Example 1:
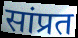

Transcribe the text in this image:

सांप्रत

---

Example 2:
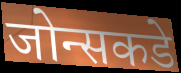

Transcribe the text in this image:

जोन्सकडे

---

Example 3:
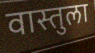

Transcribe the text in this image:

वास्तुला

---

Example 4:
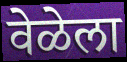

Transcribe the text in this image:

वेळेला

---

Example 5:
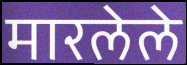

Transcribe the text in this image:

मारलेले